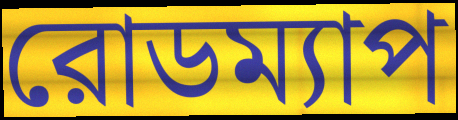
রোডম্যাপ